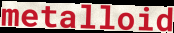
metalloid